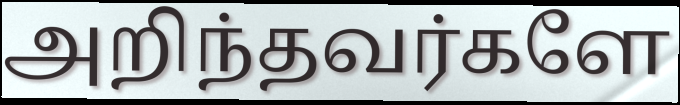
அறிந்தவர்களே